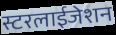
स्टरलाईजेशन